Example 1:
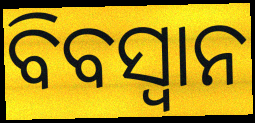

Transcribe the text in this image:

ବିବସ୍ୱାନ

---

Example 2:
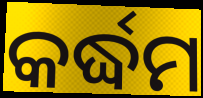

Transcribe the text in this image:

କର୍ଦ୍ଧମ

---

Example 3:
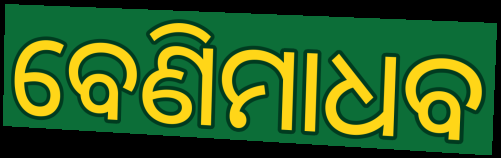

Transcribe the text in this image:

ବେଣିମାଧବ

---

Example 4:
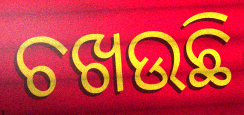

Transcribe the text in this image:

ଚଖଉଛି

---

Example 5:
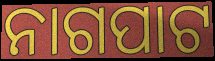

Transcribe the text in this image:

ନାଗପାଟ